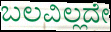
ಬಲವಿಲ್ಲದೇ